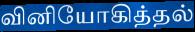
வினியோகித்தல்